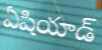
ఏషియాడ్